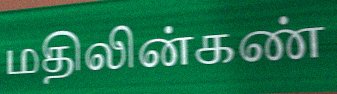
மதிலின்கண்